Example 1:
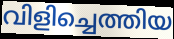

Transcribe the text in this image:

വിളിച്ചെത്തിയ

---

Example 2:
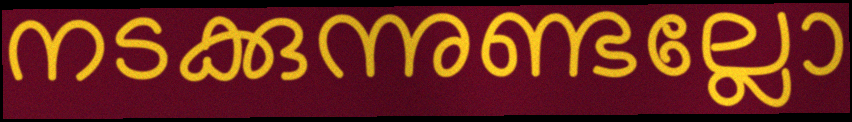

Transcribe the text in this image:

നടക്കുന്നുണ്ടല്ലോ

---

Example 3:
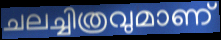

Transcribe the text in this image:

ചലച്ചിത്രവുമാണ്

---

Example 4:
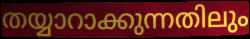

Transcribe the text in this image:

തയ്യാറാക്കുന്നതിലും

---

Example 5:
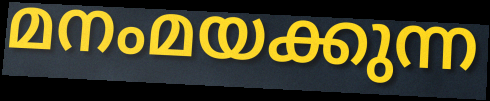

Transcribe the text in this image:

മനംമയക്കുന്ന